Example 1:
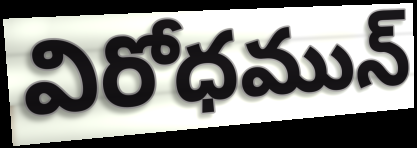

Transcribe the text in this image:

విరోధమున్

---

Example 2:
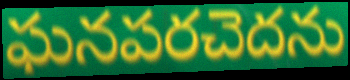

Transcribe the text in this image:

ఘనపరచెదను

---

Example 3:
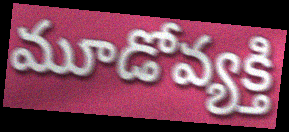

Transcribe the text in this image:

మూడోవ్యక్తి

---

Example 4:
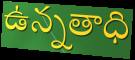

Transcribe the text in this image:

ఉన్నతాధి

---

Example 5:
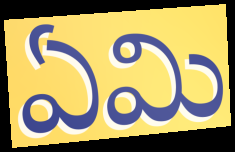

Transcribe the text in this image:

ఏమి